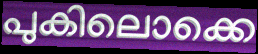
പുകിലൊക്കെ